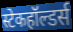
स्टेकहॉल्डर्स